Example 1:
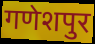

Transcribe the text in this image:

गणेशपुर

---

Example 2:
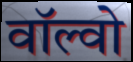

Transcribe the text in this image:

वॉल्‍वो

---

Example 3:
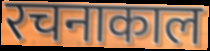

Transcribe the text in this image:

रचनाकाल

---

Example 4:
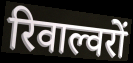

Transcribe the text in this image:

रिवाल्वरों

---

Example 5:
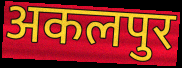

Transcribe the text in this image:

अकलपुर